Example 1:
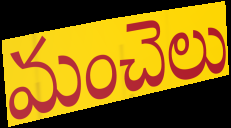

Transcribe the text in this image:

మంచెలు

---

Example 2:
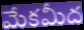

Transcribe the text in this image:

మేకమీద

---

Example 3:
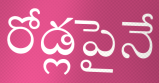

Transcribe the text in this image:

రోడ్లపైనే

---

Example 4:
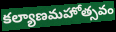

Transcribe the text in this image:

కల్యాణమహోత్సవం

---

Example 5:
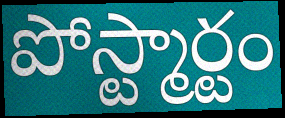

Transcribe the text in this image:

పోస్ట్మార్టం